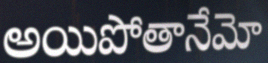
అయిపోతానేమో